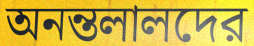
অনন্তলালদের